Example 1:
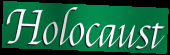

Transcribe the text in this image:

Holocaust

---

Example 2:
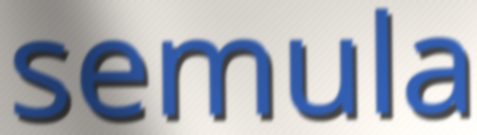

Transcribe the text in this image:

semula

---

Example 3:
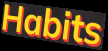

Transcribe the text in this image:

Habits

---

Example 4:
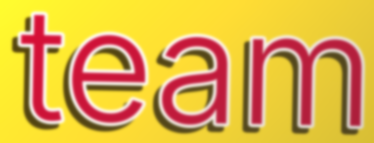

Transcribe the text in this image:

team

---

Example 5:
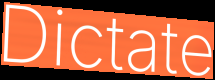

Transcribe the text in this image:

Dictate